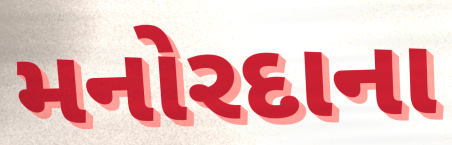
મનોરદાના